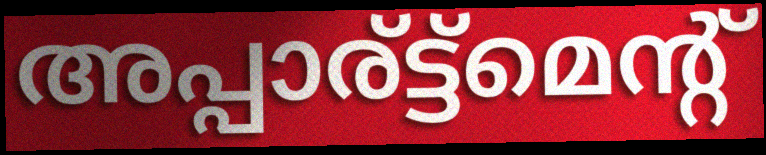
അപ്പാര്ട്ട്മെന്റ്